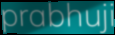
prabhuji